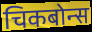
चिकबोन्स